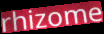
rhizome